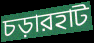
চড়ারহাট